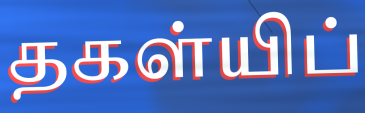
தகள்யிப்